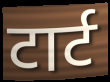
टार्ट